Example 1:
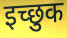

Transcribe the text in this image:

इच्‍छुक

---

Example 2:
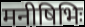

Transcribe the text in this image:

मनीषिभिः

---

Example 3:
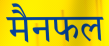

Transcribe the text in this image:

मैनफल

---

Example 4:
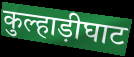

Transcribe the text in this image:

कुल्हाड़ीघाट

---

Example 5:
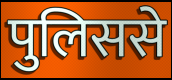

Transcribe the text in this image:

पुलिससे